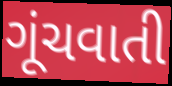
ગૂંચવાતી